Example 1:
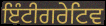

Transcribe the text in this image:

ਇੰਟੀਗਰੇਟਿਵ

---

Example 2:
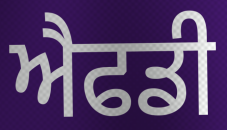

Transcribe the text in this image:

ਐਫਡੀ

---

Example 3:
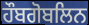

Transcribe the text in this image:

ਹੌਬਗੋਬਲਿਨ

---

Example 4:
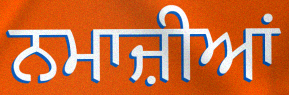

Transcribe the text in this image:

ਨਮਾਜ਼ੀਆਂ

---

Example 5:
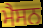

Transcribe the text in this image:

ਮੈਸਨ